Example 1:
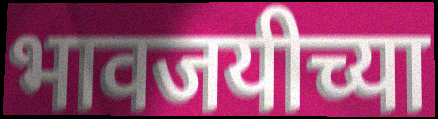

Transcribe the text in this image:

भावजयीच्या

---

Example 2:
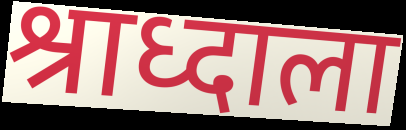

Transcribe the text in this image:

श्राध्दाला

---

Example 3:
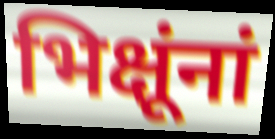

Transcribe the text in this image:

भिक्षूंनां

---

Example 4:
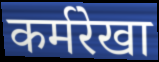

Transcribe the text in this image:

कर्मरेखा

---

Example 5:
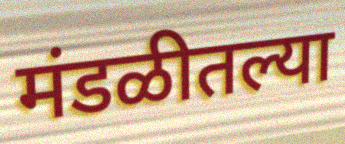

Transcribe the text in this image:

मंडळीतल्या